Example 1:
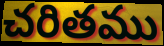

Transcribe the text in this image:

చరితము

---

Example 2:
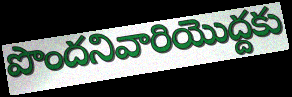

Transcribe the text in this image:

పొందనివారియొద్దకు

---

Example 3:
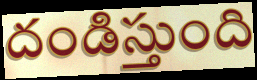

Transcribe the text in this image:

దండిస్తుంది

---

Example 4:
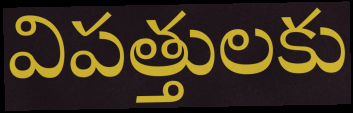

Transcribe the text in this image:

విపత్తులకు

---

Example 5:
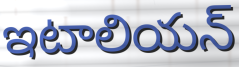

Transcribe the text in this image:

ఇటాలియన్